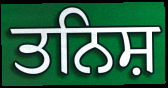
ਤਨਿਸ਼